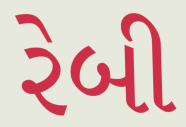
રેબી